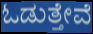
ಓಡುತ್ತೇವೆ